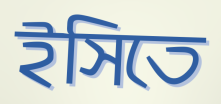
ইসিতে